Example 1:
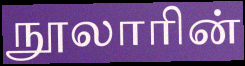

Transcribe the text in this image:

நூலாரின்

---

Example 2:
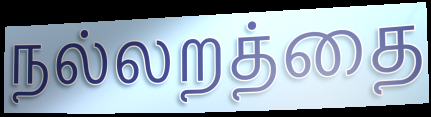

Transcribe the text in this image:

நல்லறத்தை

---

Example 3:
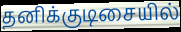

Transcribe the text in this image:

தனிக்குடிசையில்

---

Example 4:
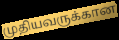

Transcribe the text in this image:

முதியவருக்கான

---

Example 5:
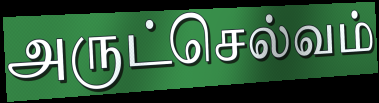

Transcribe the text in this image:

அருட்செல்வம்